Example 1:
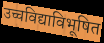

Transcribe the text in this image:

उच्चविद्याविभूषित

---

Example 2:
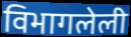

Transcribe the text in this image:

विभागलेली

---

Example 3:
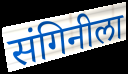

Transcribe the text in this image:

संगिनीला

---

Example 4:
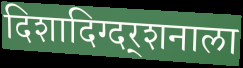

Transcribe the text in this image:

दिशादिग्दर्शनाला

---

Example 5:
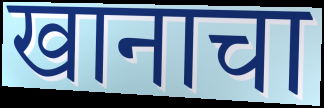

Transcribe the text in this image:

खानाचा